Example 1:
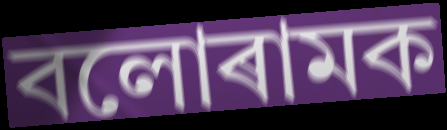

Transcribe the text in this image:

বলোৰামক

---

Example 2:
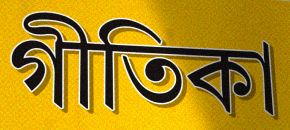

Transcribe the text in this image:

গীতিকা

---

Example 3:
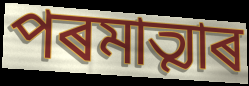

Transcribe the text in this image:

পৰমাত্মাৰ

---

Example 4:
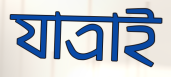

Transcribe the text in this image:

যাত্ৰাই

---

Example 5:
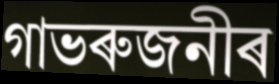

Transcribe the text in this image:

গাভৰুজনীৰ